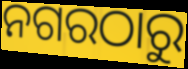
ନଗରଠାରୁ